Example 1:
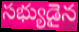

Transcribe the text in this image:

సభ్యుడైన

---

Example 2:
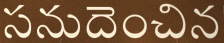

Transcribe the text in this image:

సనుదెంచిన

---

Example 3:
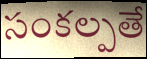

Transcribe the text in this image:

సంకల్పతే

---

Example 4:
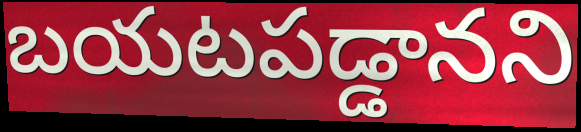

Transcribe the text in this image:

బయటపడ్డానని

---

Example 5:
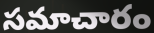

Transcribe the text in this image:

సమాచారం